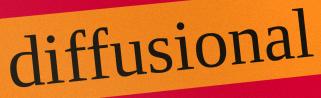
diffusional